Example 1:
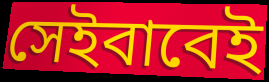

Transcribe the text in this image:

সেইবাবেই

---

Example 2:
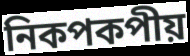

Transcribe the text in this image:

নিকপকপীয়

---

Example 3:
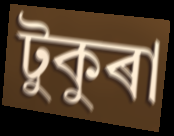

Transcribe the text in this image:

টুকুৰা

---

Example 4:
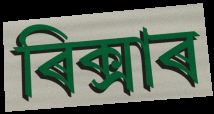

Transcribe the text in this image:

ৰিক্সাৰ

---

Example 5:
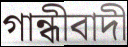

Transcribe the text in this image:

গান্ধীবাদী